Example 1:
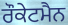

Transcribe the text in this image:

ਰੌਕੇਟਮੈਨ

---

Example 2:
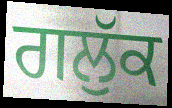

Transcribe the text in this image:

ਗਲੁੱਕ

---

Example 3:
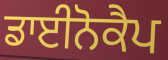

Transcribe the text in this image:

ਡਾਈਨੋਕੈਪ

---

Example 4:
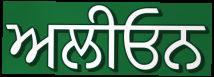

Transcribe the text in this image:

ਅਲੀਓਨ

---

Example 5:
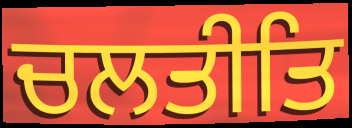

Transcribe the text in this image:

ਚਲਤੀਤਿ